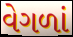
વેગળાં